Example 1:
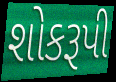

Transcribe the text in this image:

શોકરૂપી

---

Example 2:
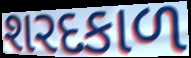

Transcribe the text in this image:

શરદકાળ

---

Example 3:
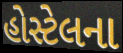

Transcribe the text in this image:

હોસ્ટેલના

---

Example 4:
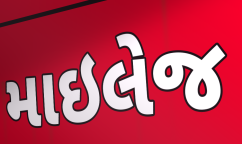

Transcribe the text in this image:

માઇલેજ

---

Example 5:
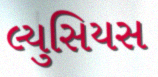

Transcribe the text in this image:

લ્યુસિયસ